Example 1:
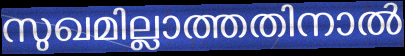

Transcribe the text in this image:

സുഖമില്ലാത്തതിനാൽ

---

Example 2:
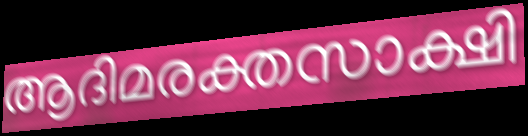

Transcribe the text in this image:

ആദിമരക്തസാക്ഷി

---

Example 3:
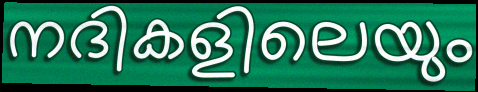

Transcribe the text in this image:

നദികളിലെയും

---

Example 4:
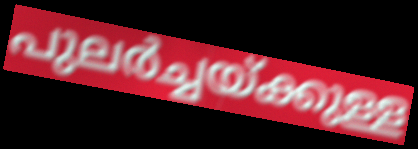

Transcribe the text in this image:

പുലർച്ചയ്ക്കുള്ള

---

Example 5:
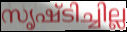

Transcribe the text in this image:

സൃഷ്ടിച്ചില്ല